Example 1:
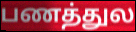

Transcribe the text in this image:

பணத்துல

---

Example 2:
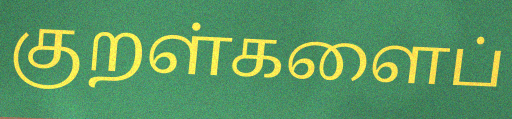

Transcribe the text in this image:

குறள்களைப்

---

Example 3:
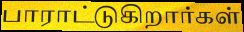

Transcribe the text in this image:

பாராட்டுகிறார்கள்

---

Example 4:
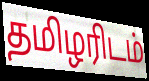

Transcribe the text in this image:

தமிழரிடம்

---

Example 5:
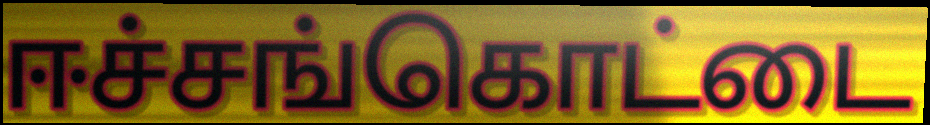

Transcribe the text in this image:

ஈச்சங்கொட்டை